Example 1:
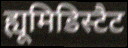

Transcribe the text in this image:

ह्यूमिडिस्टैट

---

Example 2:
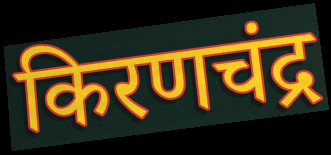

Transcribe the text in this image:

किरणचंद्र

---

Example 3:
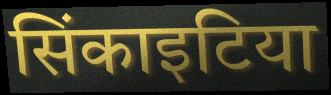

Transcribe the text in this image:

सिंकाइटिया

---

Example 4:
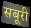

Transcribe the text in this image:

सबूरी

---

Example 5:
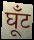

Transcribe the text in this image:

घूँट